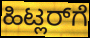
ಹಿಟ್ಲರ್‌ಗೆ